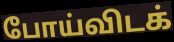
போய்விடக்